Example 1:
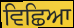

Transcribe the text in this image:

ਵਿਛਿਆ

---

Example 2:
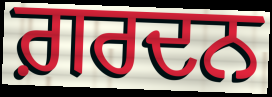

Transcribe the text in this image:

ਗ਼ਰਦਨ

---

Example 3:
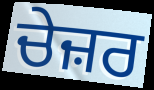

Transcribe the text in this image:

ਚੇਜ਼ਰ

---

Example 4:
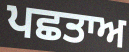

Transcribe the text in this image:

ਪਛਤਾਅ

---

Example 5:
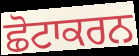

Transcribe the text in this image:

ਛੋਟਾਕਰਨ